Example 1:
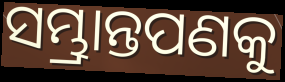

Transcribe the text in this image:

ସମ୍ଭ୍ରାନ୍ତପଣକୁ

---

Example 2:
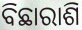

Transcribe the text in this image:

ବିଛାରାଶି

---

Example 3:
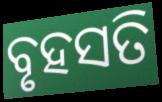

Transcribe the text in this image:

ବୃହସତି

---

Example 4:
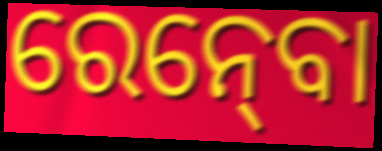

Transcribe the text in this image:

ରେନ୍‍ବୋ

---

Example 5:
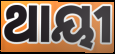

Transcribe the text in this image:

ଥାୟୀ